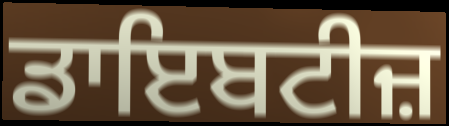
ਡਾਇਬਟੀਜ਼